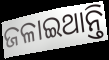
ଜଳାଇଥାନ୍ତି